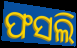
ଫସଲି